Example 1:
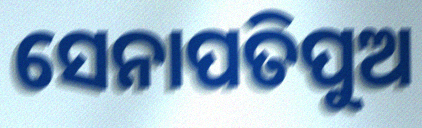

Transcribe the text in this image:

ସେନାପତିପୁଅ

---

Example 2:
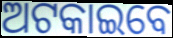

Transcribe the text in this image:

ଅଟକାଇବେ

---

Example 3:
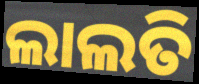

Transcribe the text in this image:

ଲାଲତି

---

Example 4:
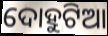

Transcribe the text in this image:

ଦୋହୁଟିଆ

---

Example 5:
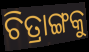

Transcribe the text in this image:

ଚିତ୍ରାଙ୍ଗକୁ